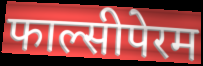
फाल्सीपेरम